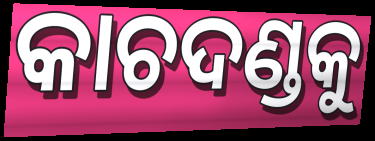
କାଚଦଣ୍ଡକୁ